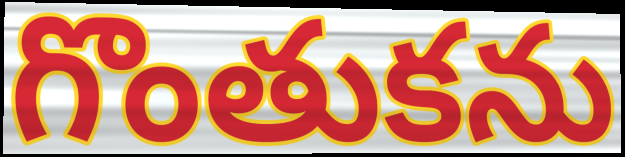
గొంతుకను